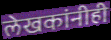
लेखकांनीही